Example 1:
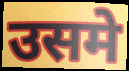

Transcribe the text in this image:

उसमे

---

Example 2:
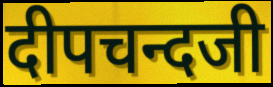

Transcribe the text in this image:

दीपचन्दजी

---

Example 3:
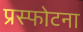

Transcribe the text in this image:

प्रस्फोटना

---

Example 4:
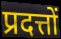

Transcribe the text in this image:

प्रदत्तों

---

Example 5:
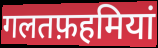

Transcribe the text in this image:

गलतफ़हमियां